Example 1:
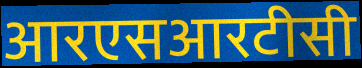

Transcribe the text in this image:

आरएसआरटीसी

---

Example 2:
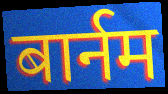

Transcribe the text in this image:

बार्नम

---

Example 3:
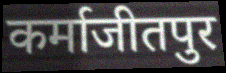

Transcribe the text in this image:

कर्माजीतपुर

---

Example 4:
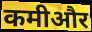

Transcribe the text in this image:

कमीऔर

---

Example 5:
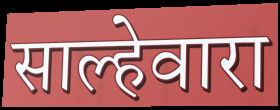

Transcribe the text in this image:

साल्हेवारा